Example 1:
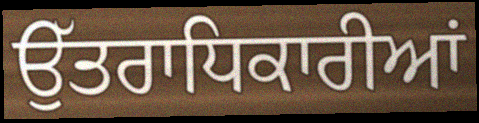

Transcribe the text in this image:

ਉੱਤਰਾਧਿਕਾਰੀਆਂ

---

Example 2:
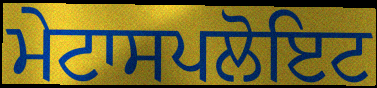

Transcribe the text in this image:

ਮੇਟਾਸਪਲੋਇਟ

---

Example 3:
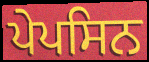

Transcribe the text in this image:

ਪੇਪਸਿਨ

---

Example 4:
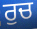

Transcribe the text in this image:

ਰੁਚ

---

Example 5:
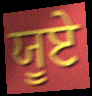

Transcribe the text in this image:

ਯੂਏ